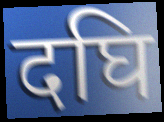
दघि